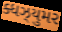
ક્ધઝ્યુમર